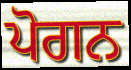
ਪੋਗਨ